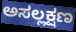
ಅಸಲ್ಲಕ್ಷಣ